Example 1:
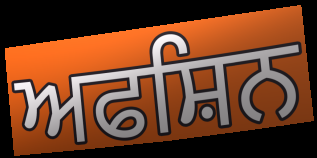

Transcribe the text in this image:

ਅਫਸ਼ਿਨ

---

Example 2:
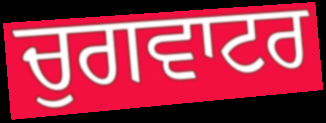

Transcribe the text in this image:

ਚੁਗਵਾਟਰ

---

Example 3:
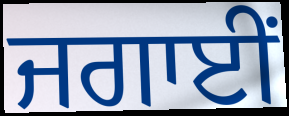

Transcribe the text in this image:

ਜਗਾਈਂ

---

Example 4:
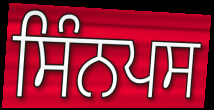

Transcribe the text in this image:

ਸਿੰਨਪਸ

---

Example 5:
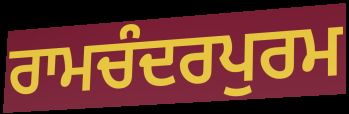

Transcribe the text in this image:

ਰਾਮਚੰਦਰਪੁਰਮ